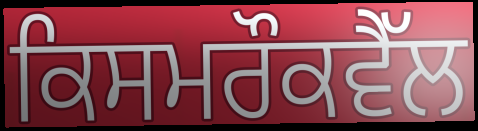
ਕਿਸਮਰੌਕਵੈੱਲ